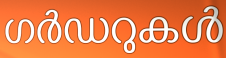
ഗർഡറുകൾ